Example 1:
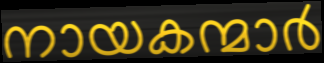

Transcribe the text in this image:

നായകന്മാർ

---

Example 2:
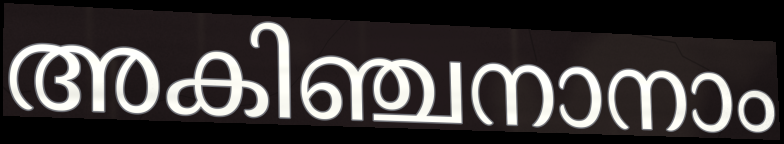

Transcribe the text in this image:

അകിഞ്ചനാനാം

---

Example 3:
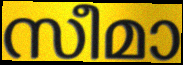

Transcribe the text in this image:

സീമാ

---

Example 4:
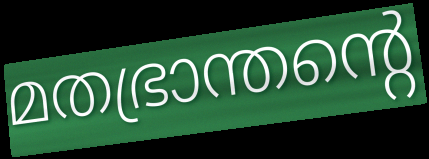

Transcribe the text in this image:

മതഭ്രാന്തന്റെ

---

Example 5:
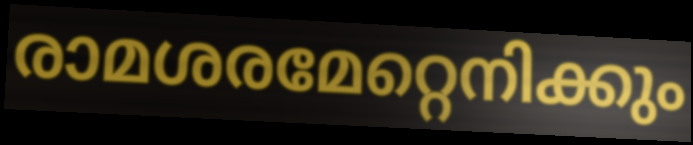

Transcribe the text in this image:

രാമശരമേറ്റെനിക്കും